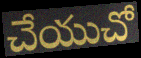
చేయుచో